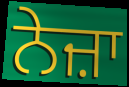
ਨੇਜ਼ਾ